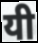
यी